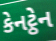
કેનટ્ઠેન